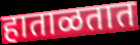
हाताळतात